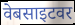
वेबसाइटवर